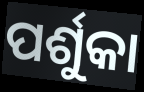
ପର୍ଶୁକା